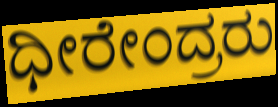
ಧೀರೇಂದ್ರರು